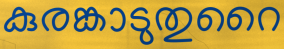
കുരങ്കാടുതുറൈ